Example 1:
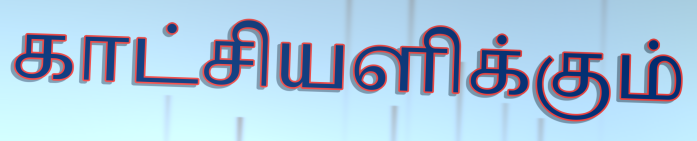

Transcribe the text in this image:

காட்சியளிக்கும்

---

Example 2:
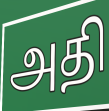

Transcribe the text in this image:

அதி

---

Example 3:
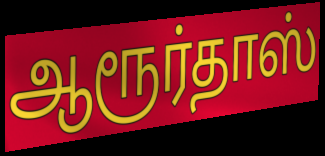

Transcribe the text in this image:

ஆரூர்தாஸ்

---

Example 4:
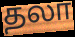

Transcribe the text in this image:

தலா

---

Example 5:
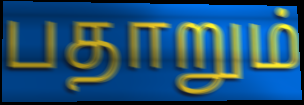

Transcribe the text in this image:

பதாறும்